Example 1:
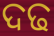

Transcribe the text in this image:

ଦଢ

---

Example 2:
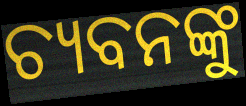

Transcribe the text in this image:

ଚ୍ୟବନଙ୍କୁ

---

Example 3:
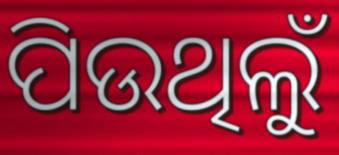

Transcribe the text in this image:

ପିଉଥିଲୁଁ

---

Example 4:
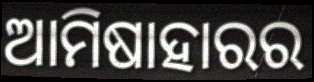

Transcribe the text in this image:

ଆମିଷାହାରର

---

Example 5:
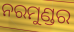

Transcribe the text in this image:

ନରମୁଣ୍ଡର